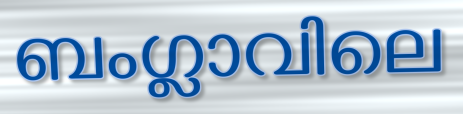
ബംഗ്ലാവിലെ